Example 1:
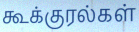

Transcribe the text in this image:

கூக்குரல்கள்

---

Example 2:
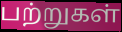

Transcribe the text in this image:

பற்றுகள்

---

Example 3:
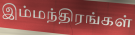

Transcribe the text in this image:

இம்மந்திரங்கள்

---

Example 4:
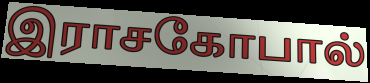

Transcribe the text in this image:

இராசகோபால்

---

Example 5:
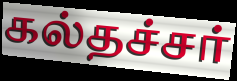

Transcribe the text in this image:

கல்தச்சர்